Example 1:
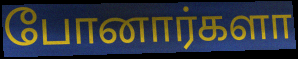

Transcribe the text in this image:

போனார்களா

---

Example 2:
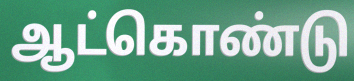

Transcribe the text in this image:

ஆட்கொண்டு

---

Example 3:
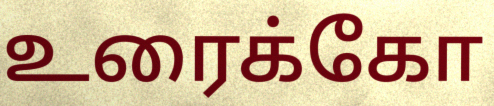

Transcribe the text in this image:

உரைக்கோ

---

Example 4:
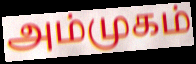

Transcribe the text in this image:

அம்முகம்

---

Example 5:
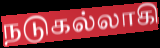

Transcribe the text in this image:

நடுகல்லாகி